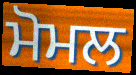
ਮੋਮਲ